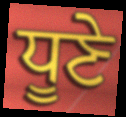
ਧੂਣੇ